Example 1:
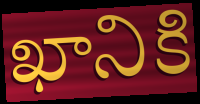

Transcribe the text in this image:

ఖానికి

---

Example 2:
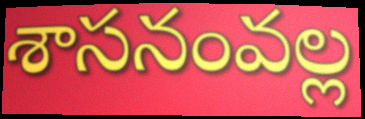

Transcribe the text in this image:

శాసనంవల్ల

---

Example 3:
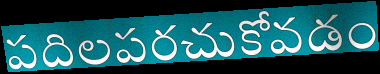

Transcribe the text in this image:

పదిలపరచుకోవడం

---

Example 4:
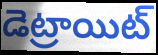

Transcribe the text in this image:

డెట్రాయిట్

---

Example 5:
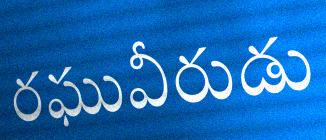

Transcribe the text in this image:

రఘువీరుడు